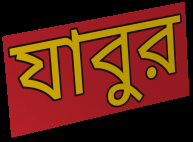
যাবুর